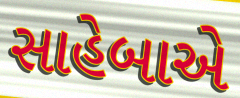
સાહેબાએ